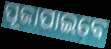
ପୂଜାପାଇବେ